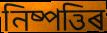
নিষ্পত্তিৰ